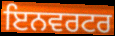
ਇਨਵਰਟਰ